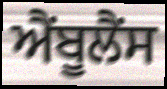
ਐੰਬੂਲੈਂਸ